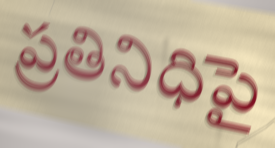
ప్రతినిధిపై